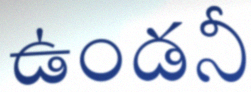
ఉండనీ